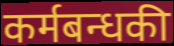
कर्मबन्धकी